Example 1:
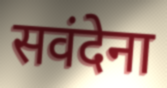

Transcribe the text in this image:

सवंदेना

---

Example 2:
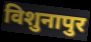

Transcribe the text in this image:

विशुनापुर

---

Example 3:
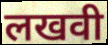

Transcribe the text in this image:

लखवी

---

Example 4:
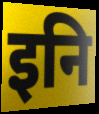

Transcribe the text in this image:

इनि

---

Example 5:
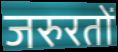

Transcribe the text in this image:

जरुरतों